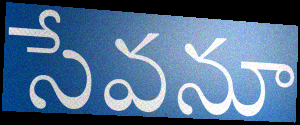
సేవనూ